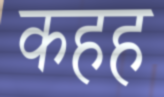
कहह